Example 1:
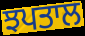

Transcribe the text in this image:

ਝਪਤਾਲ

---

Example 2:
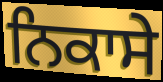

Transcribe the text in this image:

ਨਿਕਾਸੇ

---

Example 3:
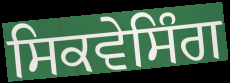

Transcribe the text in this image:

ਸਿਕਵੇਸਿੰਗ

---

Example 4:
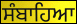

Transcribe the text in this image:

ਸੰਬਾਹਿਆ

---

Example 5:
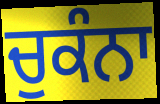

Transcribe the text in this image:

ਚੁਕੰਨਾ